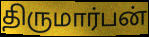
திருமார்பன்